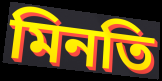
মিনতি